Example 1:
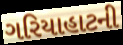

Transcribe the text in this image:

ગરિયાહાટની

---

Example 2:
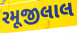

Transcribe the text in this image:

રમૂજીલાલ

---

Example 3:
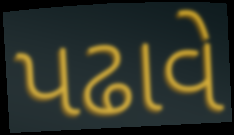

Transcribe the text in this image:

પઢાવે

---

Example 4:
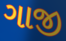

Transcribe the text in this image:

ગાજી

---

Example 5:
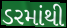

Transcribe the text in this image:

ડરમાંથી